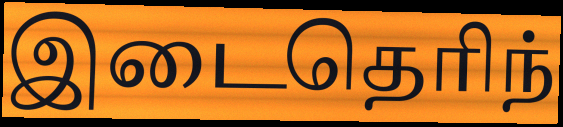
இடைதெரிந்